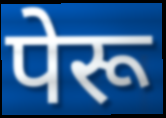
पेरू